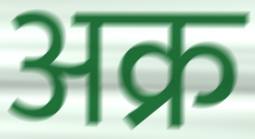
अक्र